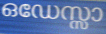
ഒഡേസ്സാ